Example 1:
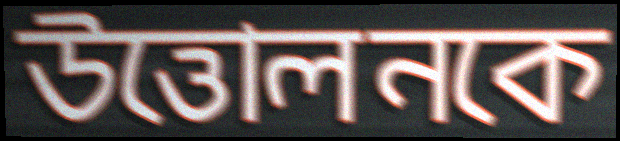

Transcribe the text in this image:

উত্তোলনকে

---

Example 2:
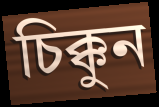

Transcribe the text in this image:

চিক্কুন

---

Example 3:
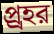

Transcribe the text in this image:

প্র্রহর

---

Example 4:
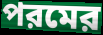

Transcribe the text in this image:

পরমের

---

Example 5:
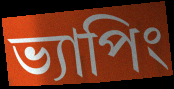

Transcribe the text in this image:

ভ্যাপিং